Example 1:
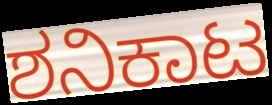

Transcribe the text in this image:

ಶನಿಕಾಟ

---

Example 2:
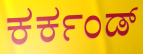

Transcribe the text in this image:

ಕರ್ಕಂಡ್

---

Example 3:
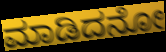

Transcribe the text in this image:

ಮಾಡಿದನೋ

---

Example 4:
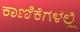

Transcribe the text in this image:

ಕಾಣಿಕೆಗಳಲ್ಲಿ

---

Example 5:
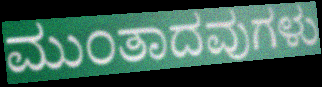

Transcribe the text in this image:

ಮುಂತಾದವುಗಳು